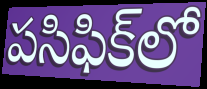
పసిఫిక్‌లో